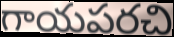
గాయపరచి